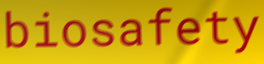
biosafety